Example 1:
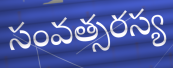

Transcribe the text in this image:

సంవత్సరస్య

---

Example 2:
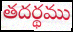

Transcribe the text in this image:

తదర్థము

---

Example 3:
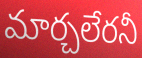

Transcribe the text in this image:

మార్చలేరనీ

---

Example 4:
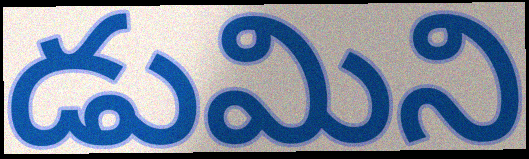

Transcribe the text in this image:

డుమిని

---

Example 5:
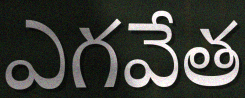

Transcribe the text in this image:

ఎగవేత